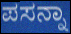
ಪಸನ್ನಾ